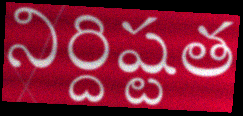
నిర్దిష్టత